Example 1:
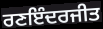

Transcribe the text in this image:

ਰਣਇੰਦਰਜੀਤ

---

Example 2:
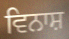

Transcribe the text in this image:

ਵਿਨਾਸ਼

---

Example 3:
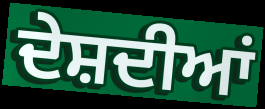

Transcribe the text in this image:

ਦੇਸ਼ਦੀਆਂ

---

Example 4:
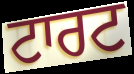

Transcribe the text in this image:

ਟਾਰਟ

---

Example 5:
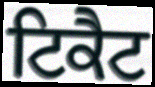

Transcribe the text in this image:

ਟਿਕੈਟ